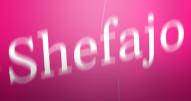
Shefajo